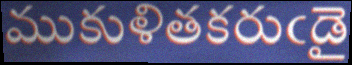
ముకుళితకరుఁడై